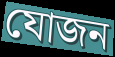
যোজন